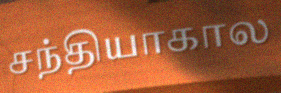
சந்தியாகால